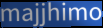
majjhimo